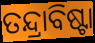
ତନ୍ଦ୍ରାବିଷ୍ଟା